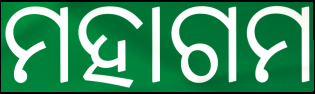
ମହାଗମ